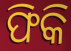
ଫିକି